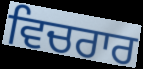
ਵਿਚਰਾਰ